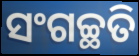
ସଂଗଚ୍ଛତି